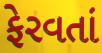
ફેરવતાં